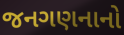
જનગણનાનો